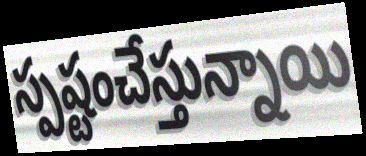
స్పష్టంచేస్తున్నాయి